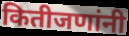
कितीजणांनी